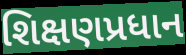
શિક્ષણપ્રધાન